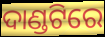
ଦାଣ୍ଡଟିରେ